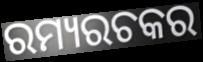
ରମ୍ୟରଚକର